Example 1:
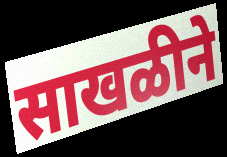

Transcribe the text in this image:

साखळीने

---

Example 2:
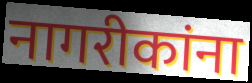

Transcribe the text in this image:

नागरीकांना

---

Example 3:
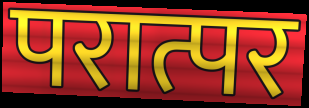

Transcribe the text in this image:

परात्पर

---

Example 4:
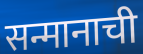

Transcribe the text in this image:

सन्मानाची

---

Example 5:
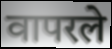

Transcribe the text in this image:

वापरले